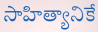
సాహిత్యానికే